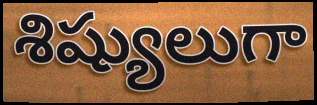
శిష్యులుగా